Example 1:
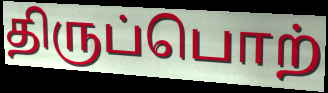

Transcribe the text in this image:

திருப்பொற்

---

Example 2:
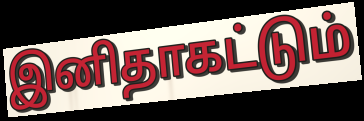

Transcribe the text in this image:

இனிதாகட்டும்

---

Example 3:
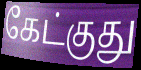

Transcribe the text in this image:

கேட்குது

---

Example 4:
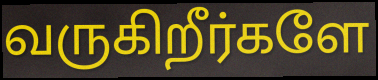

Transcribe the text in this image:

வருகிறீர்களே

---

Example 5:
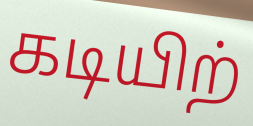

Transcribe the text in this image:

கடியிற்